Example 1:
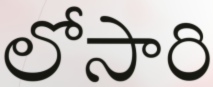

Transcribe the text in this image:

లోసారి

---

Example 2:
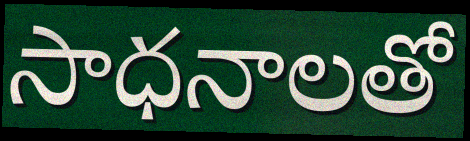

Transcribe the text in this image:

సాధనాలతో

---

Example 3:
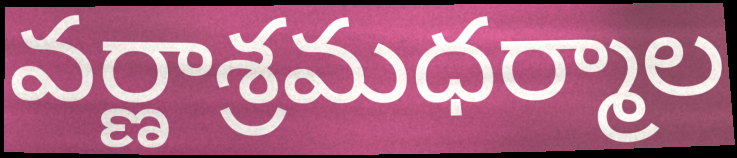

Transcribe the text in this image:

వర్ణాశ్రమధర్మాల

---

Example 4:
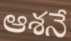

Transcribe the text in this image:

ఆశనే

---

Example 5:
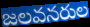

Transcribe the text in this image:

జలవనరుల